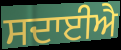
ਸਦਾਈਐ